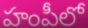
హంపీలో